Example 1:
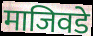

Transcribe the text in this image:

माजिवडे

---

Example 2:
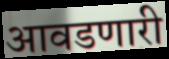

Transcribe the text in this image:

आवडणारी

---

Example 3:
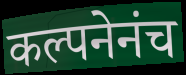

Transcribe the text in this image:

कल्पनेनंच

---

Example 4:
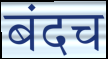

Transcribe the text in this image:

बंदच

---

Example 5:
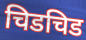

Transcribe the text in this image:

चिडचिड